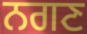
ਨਗਣ